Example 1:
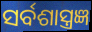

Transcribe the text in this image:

ସର୍ବଶାସ୍ତ୍ରଜ୍ଞ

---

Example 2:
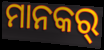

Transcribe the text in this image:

ମାନକର୍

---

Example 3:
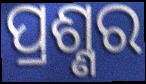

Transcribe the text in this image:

ପ୍ରଶ୍ଣର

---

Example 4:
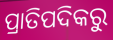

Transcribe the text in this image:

ପ୍ରାତିପଦିକରୁ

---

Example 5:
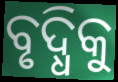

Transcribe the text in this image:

ବୃଦ୍ଧିକୁ